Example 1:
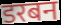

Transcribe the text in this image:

डरबन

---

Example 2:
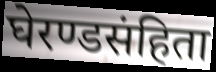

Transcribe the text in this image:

घेरण्डसंहिता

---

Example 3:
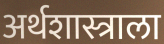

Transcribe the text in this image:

अर्थशास्त्राला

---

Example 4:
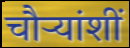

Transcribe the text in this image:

चौर्‍यांशीं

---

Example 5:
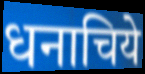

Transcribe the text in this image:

धनाचिये